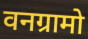
वनग्रामो